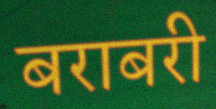
बराबरी